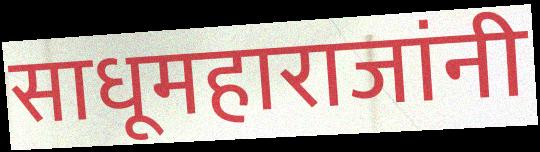
साधूमहाराजांनी